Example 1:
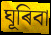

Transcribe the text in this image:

ঘূৰিবা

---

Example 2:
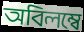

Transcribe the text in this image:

অবিলম্বে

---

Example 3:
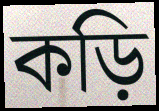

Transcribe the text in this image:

কড়ি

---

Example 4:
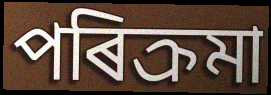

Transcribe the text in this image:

পৰিক্ৰমা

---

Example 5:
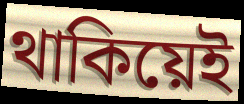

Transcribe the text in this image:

থাকিয়েই